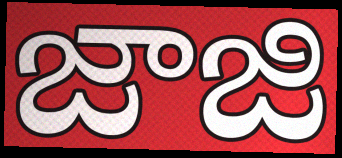
జాజి